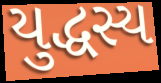
યુદ્ધસ્ય